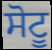
ਸੋਟੂ